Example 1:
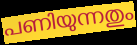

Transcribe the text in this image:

പണിയുന്നതും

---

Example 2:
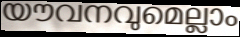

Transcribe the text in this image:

യൗവനവുമെല്ലാം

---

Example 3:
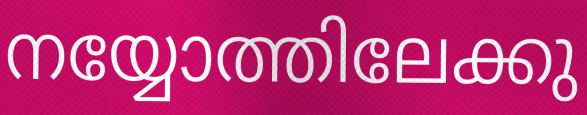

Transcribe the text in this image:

നയ്യോത്തിലേക്കു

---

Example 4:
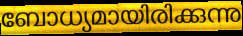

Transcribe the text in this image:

ബോധ്യമായിരിക്കുന്നു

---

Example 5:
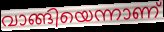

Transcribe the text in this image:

വാങ്ങിയെന്നാണ്